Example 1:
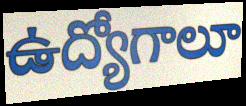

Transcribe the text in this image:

ఉద్యోగాలూ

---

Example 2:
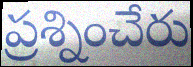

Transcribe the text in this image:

ప్రశ్నించేరు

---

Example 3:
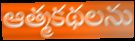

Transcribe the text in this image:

ఆత్మకథలను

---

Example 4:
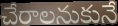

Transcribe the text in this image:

చేరాలనుకునే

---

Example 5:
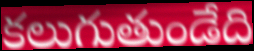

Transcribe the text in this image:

కలుగుతుండేది